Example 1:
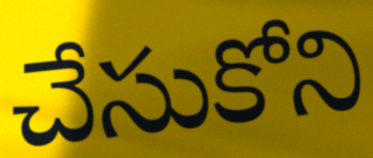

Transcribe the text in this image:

చేసుకోని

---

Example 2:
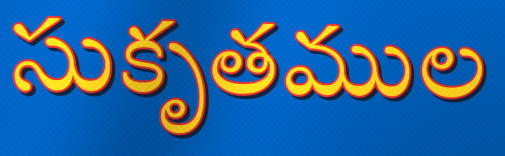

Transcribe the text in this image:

సుకృతముల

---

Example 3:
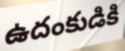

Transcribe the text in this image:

ఉదంకుడికి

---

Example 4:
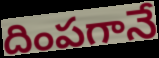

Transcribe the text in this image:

దింపగానే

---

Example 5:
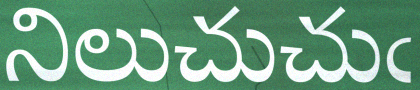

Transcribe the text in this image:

నిలుచుచుఁ